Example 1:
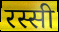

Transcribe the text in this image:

रस्सी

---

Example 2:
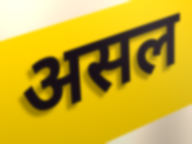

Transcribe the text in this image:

असल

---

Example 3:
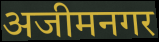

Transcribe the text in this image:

अजीमनगर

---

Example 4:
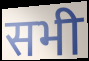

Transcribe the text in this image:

सभी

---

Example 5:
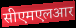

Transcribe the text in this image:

सीएमएलआर